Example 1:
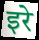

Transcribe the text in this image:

इरे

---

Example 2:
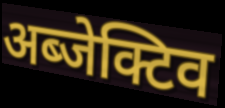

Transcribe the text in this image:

अब्जेक्टिव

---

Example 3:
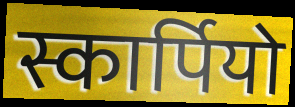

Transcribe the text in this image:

स्कार्पियो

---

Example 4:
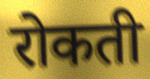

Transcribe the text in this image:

रोकती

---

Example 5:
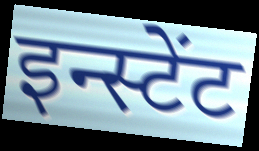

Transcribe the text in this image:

इन्स्टेंट